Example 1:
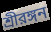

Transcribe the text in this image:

শ্রীরঙ্গন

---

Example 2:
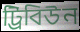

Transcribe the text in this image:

ট্রিবিউন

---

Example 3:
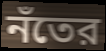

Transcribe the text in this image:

নঁতের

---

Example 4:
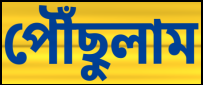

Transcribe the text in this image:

পৌঁছুলাম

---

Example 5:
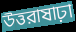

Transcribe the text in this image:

উত্তরাষাঢ়া